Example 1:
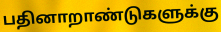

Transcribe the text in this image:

பதினாறாண்டுகளுக்கு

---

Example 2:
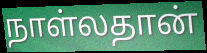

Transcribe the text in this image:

நாள்லதான்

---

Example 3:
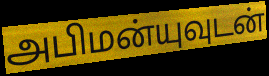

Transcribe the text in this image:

அபிமன்யுவுடன்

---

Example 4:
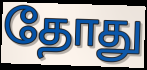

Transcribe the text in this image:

தோது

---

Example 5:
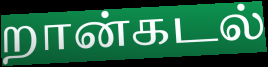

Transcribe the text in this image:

றான்கடல்